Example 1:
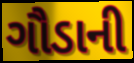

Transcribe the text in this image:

ગૌડાની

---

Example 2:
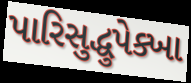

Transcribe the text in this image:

પારિસુદ્ધુપેક્ખા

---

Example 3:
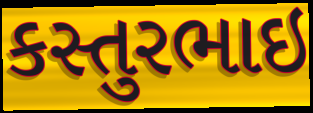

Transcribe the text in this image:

કસ્તુરભાઇ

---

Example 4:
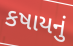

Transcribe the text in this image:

કષાયનું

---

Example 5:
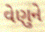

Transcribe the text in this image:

વેણુને